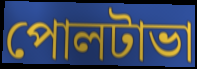
পোলটাভা